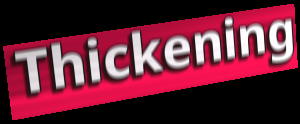
Thickening